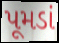
પૂમડાં